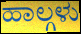
ಹಾಲ್ಗಳು